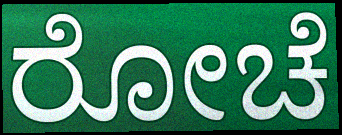
ರೋಚೆ